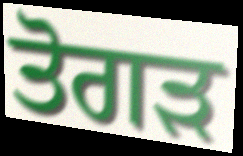
ਤੋਗੜ